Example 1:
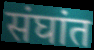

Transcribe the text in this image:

संघांत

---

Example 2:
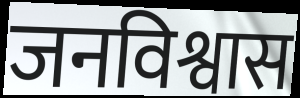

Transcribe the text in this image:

जनविश्वास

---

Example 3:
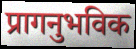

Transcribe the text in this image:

प्रागनुभविक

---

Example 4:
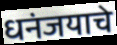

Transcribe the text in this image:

धनंजयाचे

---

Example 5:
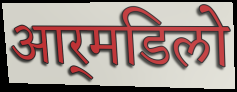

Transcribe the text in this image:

आर्मडिलो